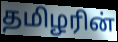
தமிழரின்